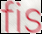
fis